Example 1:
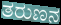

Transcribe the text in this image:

ತರುಣನ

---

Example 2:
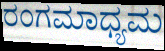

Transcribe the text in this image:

ರಂಗಮಾಧ್ಯಮ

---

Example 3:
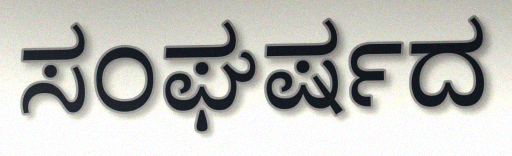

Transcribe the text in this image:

ಸಂಘರ್ಷದ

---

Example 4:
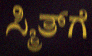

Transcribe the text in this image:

ಸ್ಮಿತ್‌ಗೆ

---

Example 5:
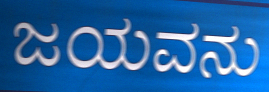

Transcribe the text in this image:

ಜಯವನು